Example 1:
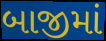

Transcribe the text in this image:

બાજીમાં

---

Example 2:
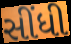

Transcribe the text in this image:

સીંધી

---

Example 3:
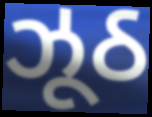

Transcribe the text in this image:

ઝૂઠ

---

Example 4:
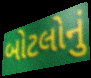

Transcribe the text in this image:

બોટલોનું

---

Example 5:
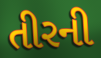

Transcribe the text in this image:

તીરની